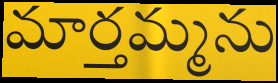
మార్తమ్మను